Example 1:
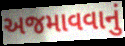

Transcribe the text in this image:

અજમાવવાનું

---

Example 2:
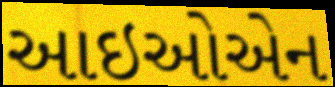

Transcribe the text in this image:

આઇઓએન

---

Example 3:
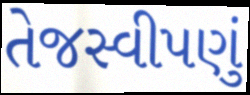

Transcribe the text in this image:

તેજસ્વીપણું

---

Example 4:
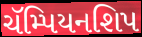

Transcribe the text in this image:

ચૅમ્પિયનશિપ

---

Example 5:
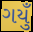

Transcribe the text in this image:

ગયુઁ